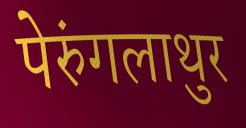
पेरुंगलाथुर